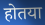
होतया